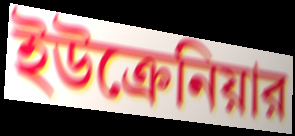
ইউক্রেনিয়ার